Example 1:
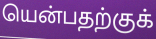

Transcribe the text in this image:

யென்பதற்குக்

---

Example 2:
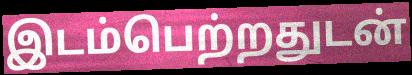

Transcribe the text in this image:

இடம்பெற்றதுடன்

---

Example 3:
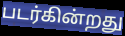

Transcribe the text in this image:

படர்கின்றது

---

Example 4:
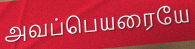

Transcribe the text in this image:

அவப்பெயரையே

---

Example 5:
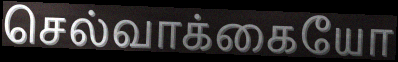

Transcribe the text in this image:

செல்வாக்கையோ